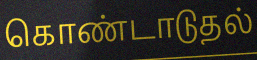
கொண்டாடுதல்